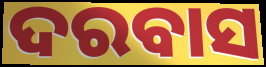
ଦରବାସ